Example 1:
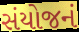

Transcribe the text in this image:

સંયોજનં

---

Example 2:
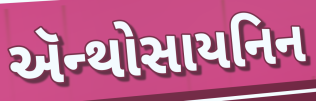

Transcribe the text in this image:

ઍન્થોસાયનિન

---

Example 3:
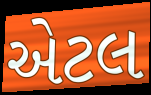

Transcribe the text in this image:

એટલ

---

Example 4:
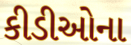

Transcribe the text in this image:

કીડીઓના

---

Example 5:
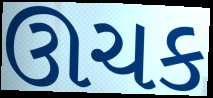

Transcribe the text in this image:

ઊચક